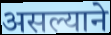
असल्‍याने